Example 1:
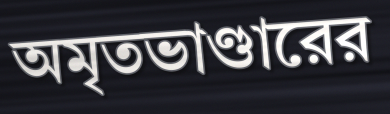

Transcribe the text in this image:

অমৃতভাণ্ডারের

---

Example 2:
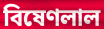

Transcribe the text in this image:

বিষেণলাল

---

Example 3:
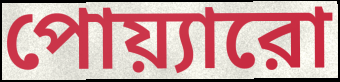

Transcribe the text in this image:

পোয়্যারো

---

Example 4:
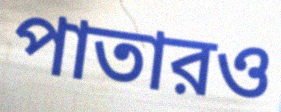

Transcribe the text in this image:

পাতারও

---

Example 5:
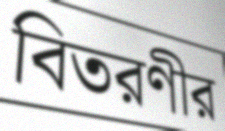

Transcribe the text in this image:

বিতরণীর